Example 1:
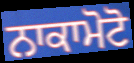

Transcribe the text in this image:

ਨਾਕਾਮੋਟੋ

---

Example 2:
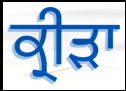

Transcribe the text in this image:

ਕ੍ਰੀੜਾ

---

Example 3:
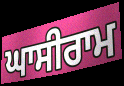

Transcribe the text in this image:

ਘਾਸੀਰਾਮ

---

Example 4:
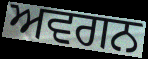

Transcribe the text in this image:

ਅਵਗਨ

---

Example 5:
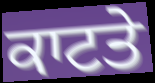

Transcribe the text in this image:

ਕਾਟਤੇ